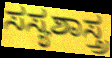
ಸಸ್ಯಶಾಸ್ತ್ರ